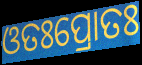
ଓତଃପ୍ରୋତଃ